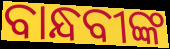
ବାନ୍ଧବୀଙ୍କ